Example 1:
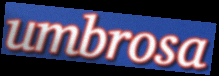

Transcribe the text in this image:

umbrosa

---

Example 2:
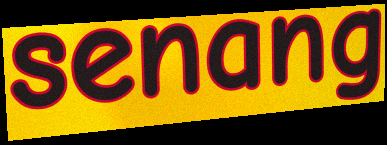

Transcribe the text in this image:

senang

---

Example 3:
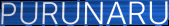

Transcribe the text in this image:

PURUNARU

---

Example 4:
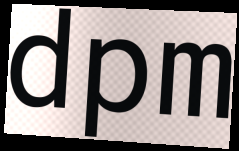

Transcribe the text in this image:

dpm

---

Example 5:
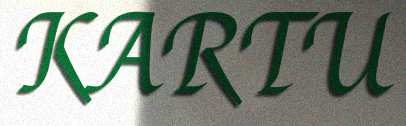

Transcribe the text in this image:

KARTU